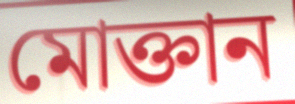
মোক্তান